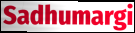
Sadhumargi